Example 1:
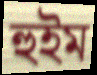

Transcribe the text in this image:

হুইম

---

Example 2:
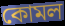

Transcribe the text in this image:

কোমল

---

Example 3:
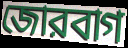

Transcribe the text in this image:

জোরবাগ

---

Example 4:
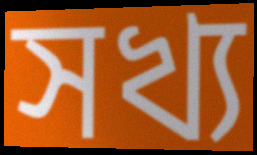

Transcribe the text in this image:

সখ্য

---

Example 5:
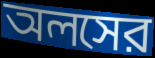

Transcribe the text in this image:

অলসের